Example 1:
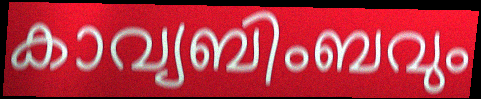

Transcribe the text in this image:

കാവ്യബിംബവും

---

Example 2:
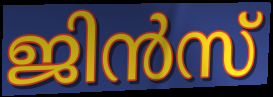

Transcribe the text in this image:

ജിൻസ്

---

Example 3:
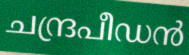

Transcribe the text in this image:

ചന്ദ്രപീഡൻ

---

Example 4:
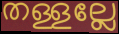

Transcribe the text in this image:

തള്ളല്ലേ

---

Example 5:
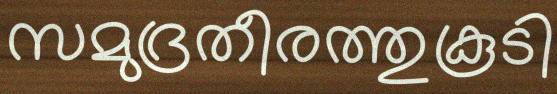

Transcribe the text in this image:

സമുദ്രതീരത്തുകൂടി